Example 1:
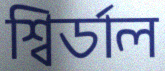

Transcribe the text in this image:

শ্বিৰ্ডাল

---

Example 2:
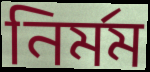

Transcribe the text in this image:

নিৰ্মম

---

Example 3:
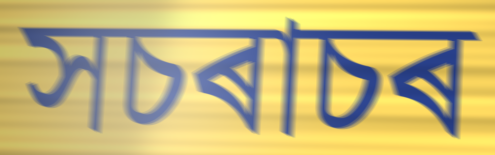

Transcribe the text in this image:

সচৰাচৰ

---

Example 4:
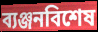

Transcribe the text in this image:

ব্যঞ্জনবিশেষ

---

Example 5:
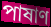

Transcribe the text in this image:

পাষাণ